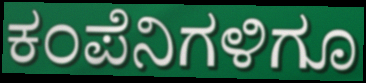
ಕಂಪೆನಿಗಳಿಗೂ